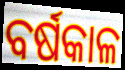
ବର୍ଷକାଳ